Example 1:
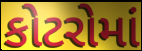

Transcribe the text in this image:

કોટરોમાં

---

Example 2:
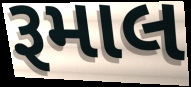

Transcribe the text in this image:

રૂમાલ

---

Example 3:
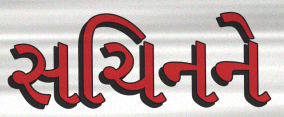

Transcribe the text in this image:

સચિનને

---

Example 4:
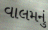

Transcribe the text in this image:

વાલમનું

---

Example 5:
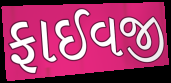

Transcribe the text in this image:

ફાઈવજી